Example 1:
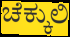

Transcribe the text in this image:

ಚೆಕ್ಕುಲಿ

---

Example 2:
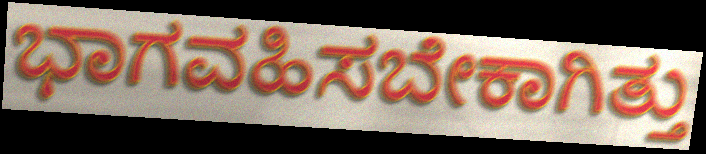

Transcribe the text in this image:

ಭಾಗವಹಿಸಬೇಕಾಗಿತ್ತು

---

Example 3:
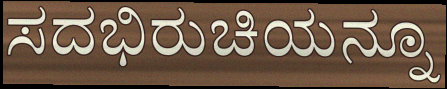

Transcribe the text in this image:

ಸದಭಿರುಚಿಯನ್ನೂ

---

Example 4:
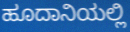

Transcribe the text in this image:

ಹೂದಾನಿಯಲ್ಲಿ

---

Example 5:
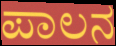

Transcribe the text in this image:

ಪಾಲನ